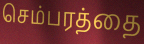
செம்பரத்தை